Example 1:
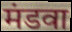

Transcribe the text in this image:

मंडवा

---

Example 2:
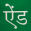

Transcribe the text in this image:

ऐंड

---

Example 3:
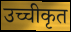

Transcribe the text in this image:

उच्चीकृत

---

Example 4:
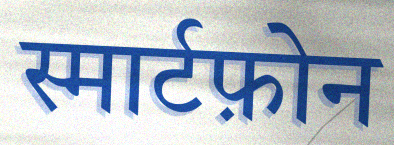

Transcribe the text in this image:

स्मार्टफ़ोन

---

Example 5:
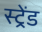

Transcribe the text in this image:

स्ट्रेंड